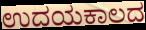
ಉದಯಕಾಲದ